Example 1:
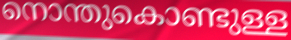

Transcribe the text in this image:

നൊന്തുകൊണ്ടുള്ള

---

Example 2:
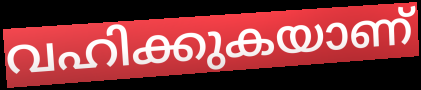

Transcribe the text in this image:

വഹിക്കുകയാണ്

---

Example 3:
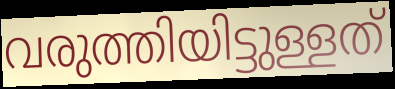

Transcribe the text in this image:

വരുത്തിയിട്ടുള്ളത്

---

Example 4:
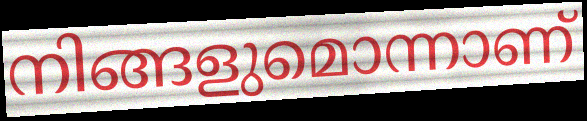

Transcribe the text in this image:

നിങ്ങളുമൊന്നാണ്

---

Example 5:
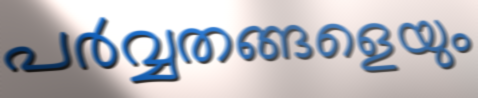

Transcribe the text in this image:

പർവ്വതങ്ങളെയും